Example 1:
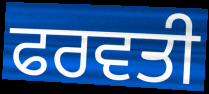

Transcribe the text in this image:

ਫਰਵਤੀ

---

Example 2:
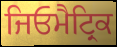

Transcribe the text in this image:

ਜਿਓਮੈਟ੍ਰਿਕ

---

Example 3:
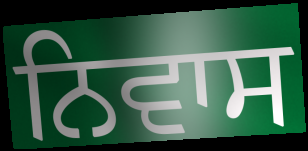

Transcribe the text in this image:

ਨਿਵਾਸ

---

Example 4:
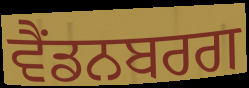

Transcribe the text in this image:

ਵੈਂਡਨਬਰਗ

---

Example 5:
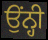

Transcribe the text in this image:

ਉਂਨ੍ਹੀ